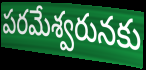
పరమేశ్వరునకు